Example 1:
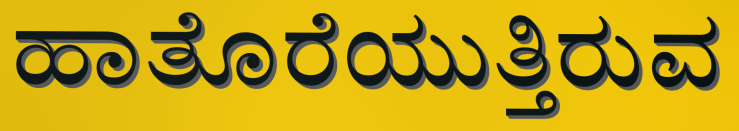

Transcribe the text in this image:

ಹಾತೊರೆಯುತ್ತಿರುವ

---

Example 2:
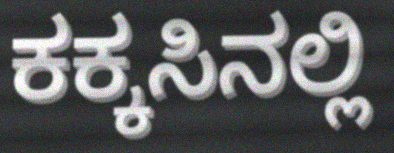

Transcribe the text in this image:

ಕಕ್ಕಸಿನಲ್ಲಿ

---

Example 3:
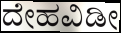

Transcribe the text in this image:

ದೇಹವಿಡೀ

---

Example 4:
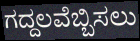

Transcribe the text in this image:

ಗದ್ದಲವೆಬ್ಬಿಸಲು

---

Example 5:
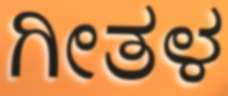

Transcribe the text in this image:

ಗೀತಳ